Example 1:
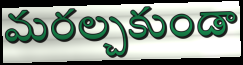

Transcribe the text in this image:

మరల్చకుండా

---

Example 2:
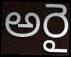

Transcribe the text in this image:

అరై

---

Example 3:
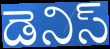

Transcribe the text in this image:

డెనిస్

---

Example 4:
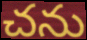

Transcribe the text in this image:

చను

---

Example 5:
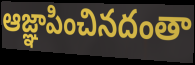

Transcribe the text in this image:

ఆజ్ఞాపించినదంతా